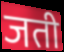
जती